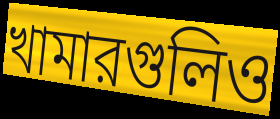
খামারগুলিও